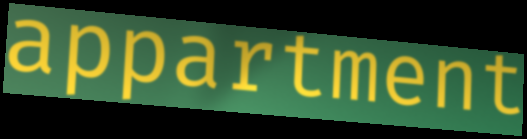
appartment